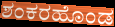
ಶಂಕರಹೊಂಡ